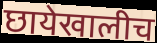
छायेखालीच